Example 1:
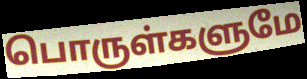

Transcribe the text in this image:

பொருள்களுமே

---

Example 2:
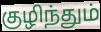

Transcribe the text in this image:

குழிந்தும்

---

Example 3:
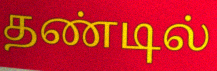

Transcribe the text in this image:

தண்டில்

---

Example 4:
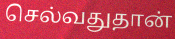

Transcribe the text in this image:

செல்வதுதான்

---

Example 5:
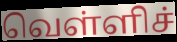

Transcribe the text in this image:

வெள்ளிச்